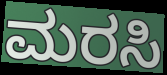
ಮರಸಿ